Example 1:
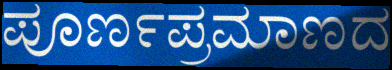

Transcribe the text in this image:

ಪೂರ್ಣಪ್ರಮಾಣದ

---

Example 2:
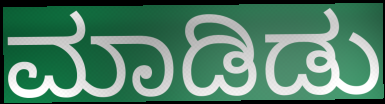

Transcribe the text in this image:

ಮಾಡಿಡು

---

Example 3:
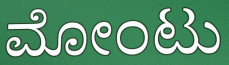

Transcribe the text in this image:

ಮೋಂಟು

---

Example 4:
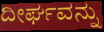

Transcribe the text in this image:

ದೀರ್ಘವನ್ನು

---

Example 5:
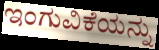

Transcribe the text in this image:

ಇಂಗುವಿಕೆಯನ್ನು